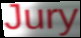
Jury